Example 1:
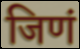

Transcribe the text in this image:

जिणं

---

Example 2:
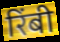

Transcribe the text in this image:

रिंबी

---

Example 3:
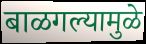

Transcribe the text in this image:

बाळगल्यामुळे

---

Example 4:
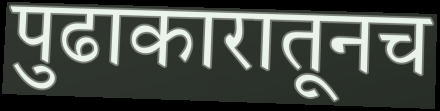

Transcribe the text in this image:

पुढाकारातूनच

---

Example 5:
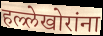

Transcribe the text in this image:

हल्लेखोरांना